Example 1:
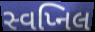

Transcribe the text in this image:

સ્વપ્નિલ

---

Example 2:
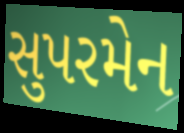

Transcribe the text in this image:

સુપરમેન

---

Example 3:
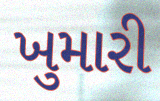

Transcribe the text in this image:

ખુમારી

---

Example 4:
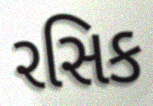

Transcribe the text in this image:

રસિક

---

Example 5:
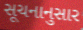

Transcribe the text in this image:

સૂચનાનુસાર